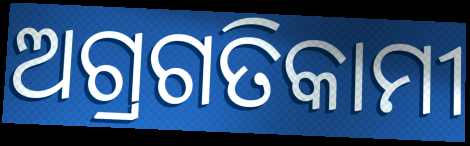
ଅଗ୍ରଗତିକାମୀ